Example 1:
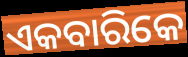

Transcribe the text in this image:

ଏକବାରିକେ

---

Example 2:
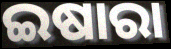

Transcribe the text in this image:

ଇଷାରା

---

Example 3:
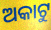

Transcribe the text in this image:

ଅକାଟୁ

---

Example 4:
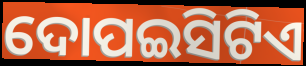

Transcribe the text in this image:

ଦୋପଇସିଟିଏ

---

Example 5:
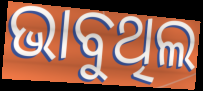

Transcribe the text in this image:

ଭାବୁଥିଲ